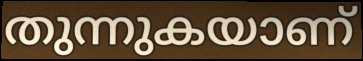
തുന്നുകയാണ്